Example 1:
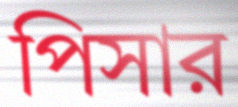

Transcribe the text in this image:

পিসার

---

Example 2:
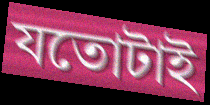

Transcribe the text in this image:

যতোটাই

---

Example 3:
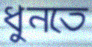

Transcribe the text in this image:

ধুনতে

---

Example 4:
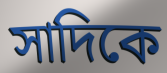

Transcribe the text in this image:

সাদিকে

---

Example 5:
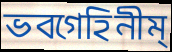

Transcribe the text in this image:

ভবগেহিনীম্